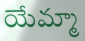
యేమ్మా